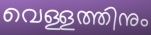
വെള്ളത്തിനും